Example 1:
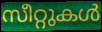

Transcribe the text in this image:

സീറ്റുകൾ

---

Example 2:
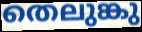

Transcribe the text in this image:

തെലുങ്കു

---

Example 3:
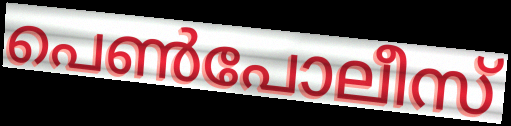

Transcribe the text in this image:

പെൺപോലീസ്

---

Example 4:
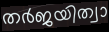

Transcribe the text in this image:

തർജയിത്വാ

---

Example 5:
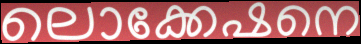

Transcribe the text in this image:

ലൊക്കേഷനെ